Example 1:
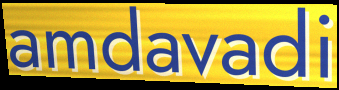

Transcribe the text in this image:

amdavadi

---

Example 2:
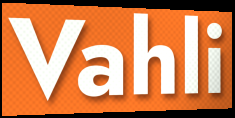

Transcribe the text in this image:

Vahli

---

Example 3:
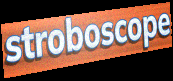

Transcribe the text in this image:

stroboscope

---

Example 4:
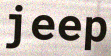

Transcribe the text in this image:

jeep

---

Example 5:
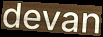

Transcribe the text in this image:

devan